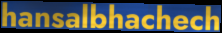
hansalbhachech